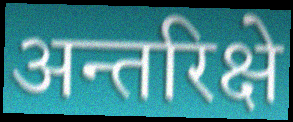
अन्तरिक्षे